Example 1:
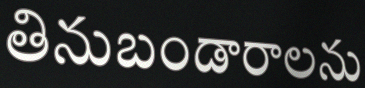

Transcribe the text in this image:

తినుబండారాలను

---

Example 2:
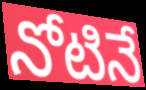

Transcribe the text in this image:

నోటినే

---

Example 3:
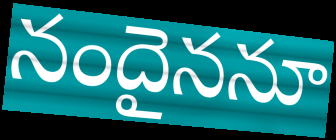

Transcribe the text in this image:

నందైననూ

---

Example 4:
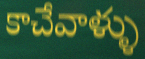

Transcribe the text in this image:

కాచేవాళ్ళు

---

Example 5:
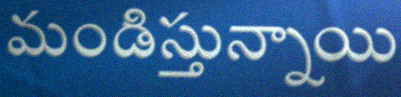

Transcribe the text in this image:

మండిస్తున్నాయి